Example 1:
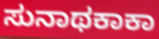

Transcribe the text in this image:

ಸುನಾಥಕಾಕಾ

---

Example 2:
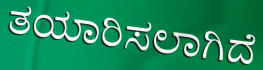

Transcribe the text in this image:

ತಯಾರಿಸಲಾಗಿದೆ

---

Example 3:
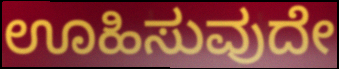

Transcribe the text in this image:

ಊಹಿಸುವುದೇ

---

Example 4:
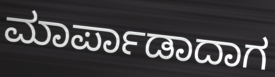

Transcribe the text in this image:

ಮಾರ್ಪಾಡಾದಾಗ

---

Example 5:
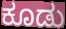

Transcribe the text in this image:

ಕೂಡು